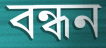
বন্ধন